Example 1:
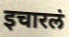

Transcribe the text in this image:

इचारलं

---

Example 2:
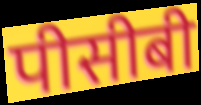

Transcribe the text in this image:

पीसीबी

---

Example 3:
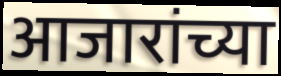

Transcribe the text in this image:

आजारांच्या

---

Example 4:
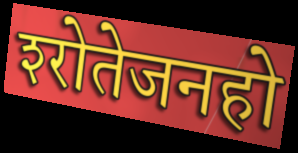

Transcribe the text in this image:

श्रोतेजनहो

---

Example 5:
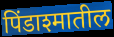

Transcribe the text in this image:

पिंडाश्मातील